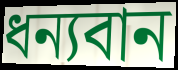
ধন্যবান